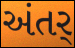
અંતર્